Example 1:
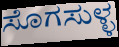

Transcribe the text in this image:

ಸೊಗಸುಳ್ಳ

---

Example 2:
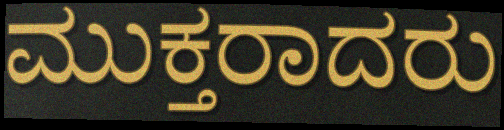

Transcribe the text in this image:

ಮುಕ್ತರಾದರು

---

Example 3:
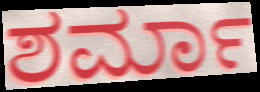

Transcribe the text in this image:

ಶರ್ಮಾ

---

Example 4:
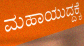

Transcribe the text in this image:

ಮಹಾಯುದ್ದಕ್ಕೆ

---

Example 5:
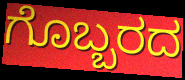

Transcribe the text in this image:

ಗೊಬ್ಬರದ